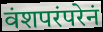
वंशपरंपरेनं